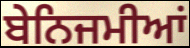
ਬੇਨਿਜਮੀਆਂ